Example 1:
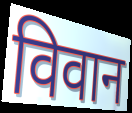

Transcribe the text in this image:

विवान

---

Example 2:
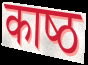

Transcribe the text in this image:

काष्‍ठ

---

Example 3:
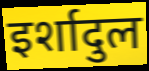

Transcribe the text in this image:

इर्शादुल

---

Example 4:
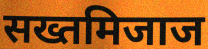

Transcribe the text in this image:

सख्तमिजाज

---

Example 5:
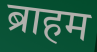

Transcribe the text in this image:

ब्राहम